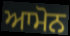
ਆਮੋਨ